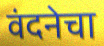
वंदनेचा